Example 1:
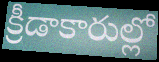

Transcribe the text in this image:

క్రీడాకారుల్లో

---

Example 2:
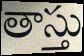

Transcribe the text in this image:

తాస్తు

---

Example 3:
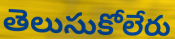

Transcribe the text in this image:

తెలుసుకోలేరు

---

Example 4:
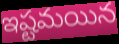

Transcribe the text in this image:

ఇష్టమయిన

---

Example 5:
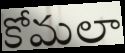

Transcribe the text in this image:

కోమలా